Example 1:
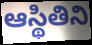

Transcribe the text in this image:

ఆస్థితిని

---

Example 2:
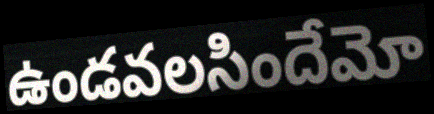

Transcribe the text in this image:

ఉండవలసిందేమో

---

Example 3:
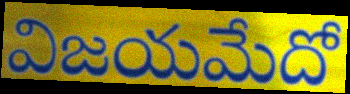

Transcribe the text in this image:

విజయమేదో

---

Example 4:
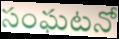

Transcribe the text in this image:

సంఘటనో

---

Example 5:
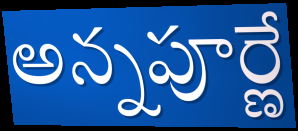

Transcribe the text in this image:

అన్నపూర్ణే